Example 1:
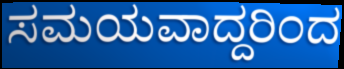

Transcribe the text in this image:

ಸಮಯವಾದ್ದರಿಂದ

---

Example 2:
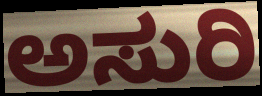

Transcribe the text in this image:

ಅಸುರಿ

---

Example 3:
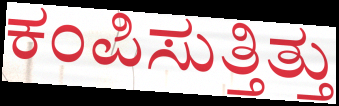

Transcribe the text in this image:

ಕಂಪಿಸುತ್ತಿತ್ತು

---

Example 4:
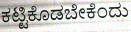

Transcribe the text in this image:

ಕಟ್ಟಿಕೊಡಬೇಕೆಂದು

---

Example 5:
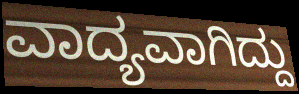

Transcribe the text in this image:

ವಾದ್ಯವಾಗಿದ್ದು